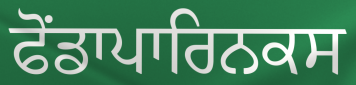
ਫੋਂਡਾਪਾਰਿਨਕਸ